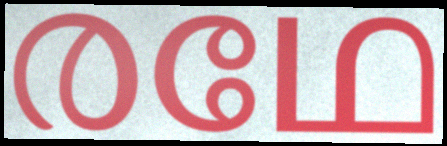
രഥേ